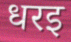
धरइ